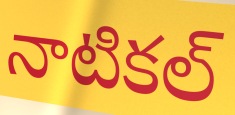
నాటికల్